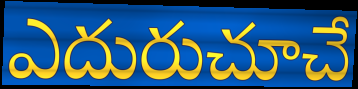
ఎదురుచూచే